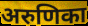
अरुणिका